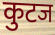
कुटज